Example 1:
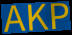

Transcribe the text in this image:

AKP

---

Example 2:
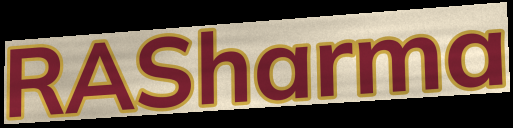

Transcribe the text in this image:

RASharma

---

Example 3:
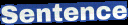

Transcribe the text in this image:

Sentence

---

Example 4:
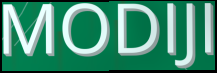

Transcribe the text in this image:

MODIJI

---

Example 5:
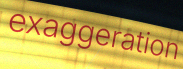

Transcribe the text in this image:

exaggeration